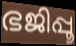
ഭജിപ്പൂ